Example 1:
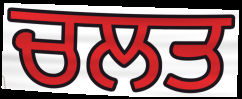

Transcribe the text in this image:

ਚਲਤ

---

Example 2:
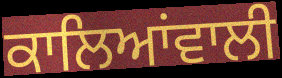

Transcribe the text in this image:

ਕਾਲਿਆਂਵਾਲੀ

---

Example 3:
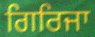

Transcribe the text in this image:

ਗਿਰਿਜਾ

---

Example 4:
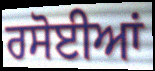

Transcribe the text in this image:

ਰਸੋਈਆਂ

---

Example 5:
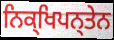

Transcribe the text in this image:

ਨਿਕ੍ਖਿਪਨ੍ਤੇਨ